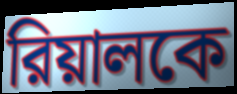
রিয়ালকে